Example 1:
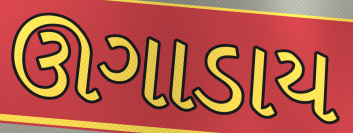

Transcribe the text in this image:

ઊગાડાય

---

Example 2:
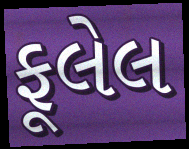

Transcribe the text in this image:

ફૂલેલ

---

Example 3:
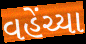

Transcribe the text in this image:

વહેંચ્યા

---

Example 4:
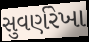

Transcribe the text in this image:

સુવર્ણરેખા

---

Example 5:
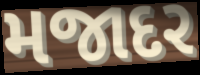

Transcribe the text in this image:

મજાદર